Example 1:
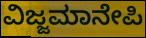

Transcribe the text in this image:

ವಿಜ್ಜಮಾನೇಪಿ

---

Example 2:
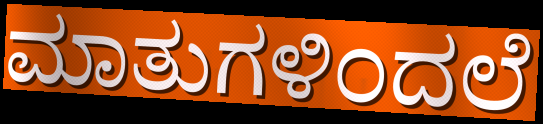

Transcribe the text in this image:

ಮಾತುಗಳಿಂದಲೆ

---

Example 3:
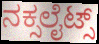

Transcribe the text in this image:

ನಕ್ಸಲೈಟ್ಸ್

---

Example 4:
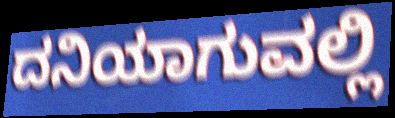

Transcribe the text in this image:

ದನಿಯಾಗುವಲ್ಲಿ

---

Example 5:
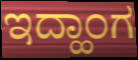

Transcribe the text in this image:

ಇದ್ಹಾಂಗ